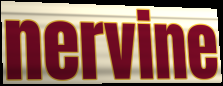
nervine